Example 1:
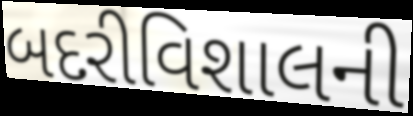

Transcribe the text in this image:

બદરીવિશાલની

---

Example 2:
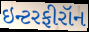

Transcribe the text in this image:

ઇન્ટરફીરૉન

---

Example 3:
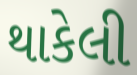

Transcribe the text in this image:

થાકેલી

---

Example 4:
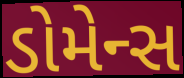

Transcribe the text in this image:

ડોમેન્સ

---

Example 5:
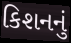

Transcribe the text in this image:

કિશનનું